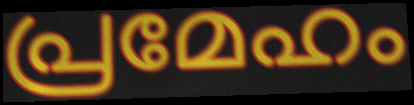
പ്രമേഹം